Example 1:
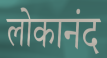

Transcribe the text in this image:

लोकानंद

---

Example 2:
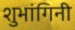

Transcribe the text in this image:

शुभांगिनी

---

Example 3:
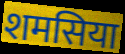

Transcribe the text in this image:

शमसिया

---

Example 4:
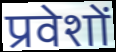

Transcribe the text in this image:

प्रवेशों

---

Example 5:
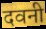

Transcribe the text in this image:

दवनी